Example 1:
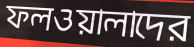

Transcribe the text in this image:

ফলওয়ালাদের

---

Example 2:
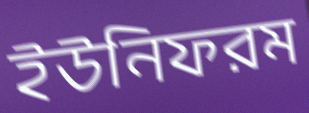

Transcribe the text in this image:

ইউনিফরম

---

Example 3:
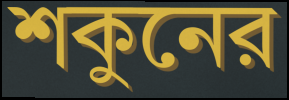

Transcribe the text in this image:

শকুনের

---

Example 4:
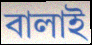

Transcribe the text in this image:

বালাই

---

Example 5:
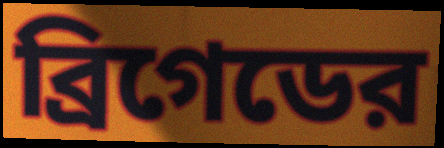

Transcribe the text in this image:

ব্রিগেডের